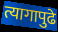
त्यागापुढे